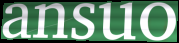
ansuo